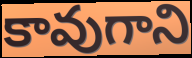
కావుగాని